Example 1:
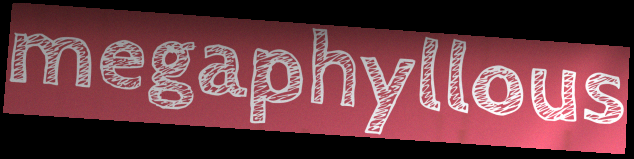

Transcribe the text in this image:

megaphyllous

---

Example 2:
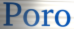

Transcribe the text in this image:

Poro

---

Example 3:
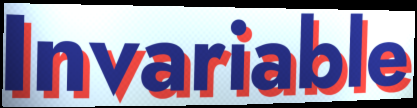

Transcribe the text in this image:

Invariable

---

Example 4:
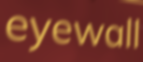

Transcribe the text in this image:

eyewall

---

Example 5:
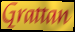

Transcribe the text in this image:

Grattan